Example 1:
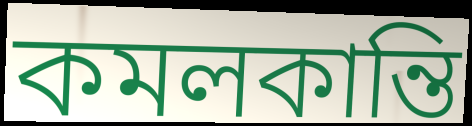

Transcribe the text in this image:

কমলকান্তি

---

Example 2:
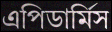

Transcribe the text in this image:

এপিডার্মিস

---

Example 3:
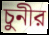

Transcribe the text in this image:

চুনীর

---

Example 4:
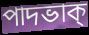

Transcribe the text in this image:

পাদভাক্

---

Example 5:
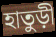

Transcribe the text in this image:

হাতুড়ী